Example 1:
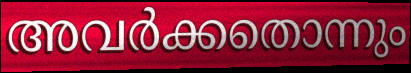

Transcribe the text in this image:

അവർക്കതൊന്നും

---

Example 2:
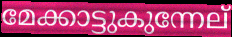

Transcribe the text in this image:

മേക്കാട്ടുകുന്നേല്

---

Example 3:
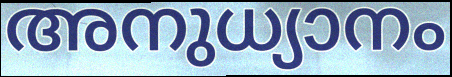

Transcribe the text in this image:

അനുധ്യാനം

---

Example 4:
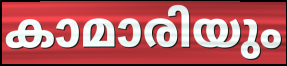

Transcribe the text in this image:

കാമാരിയും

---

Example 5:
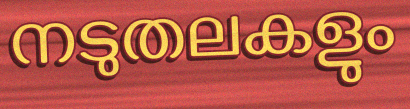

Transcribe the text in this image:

നടുതലകളും